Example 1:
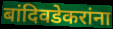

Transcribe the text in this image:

बांदिवडेकरांना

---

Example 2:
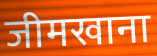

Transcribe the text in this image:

जीमखाना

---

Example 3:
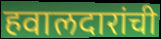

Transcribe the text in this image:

हवालदारांची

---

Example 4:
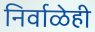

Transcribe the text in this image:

निर्वाळेही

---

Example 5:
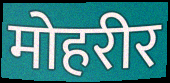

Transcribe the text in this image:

मोहरीर